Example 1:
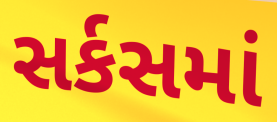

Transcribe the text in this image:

સર્કસમાં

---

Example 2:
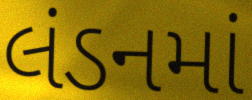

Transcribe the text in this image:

લંડનમાં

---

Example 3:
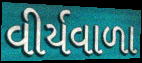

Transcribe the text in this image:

વીર્યવાળા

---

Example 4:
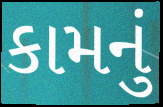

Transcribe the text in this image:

કામનું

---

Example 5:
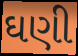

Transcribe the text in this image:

ઘણી